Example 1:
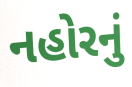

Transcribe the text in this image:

નહોરનું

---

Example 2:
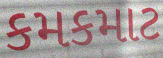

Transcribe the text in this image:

કમકમાટ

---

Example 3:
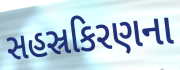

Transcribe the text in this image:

સહસ્રકિરણના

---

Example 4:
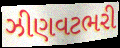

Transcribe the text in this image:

ઝીણવટભરી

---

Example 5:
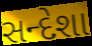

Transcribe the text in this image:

સન્દેશા